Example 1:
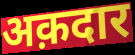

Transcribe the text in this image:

अक़दार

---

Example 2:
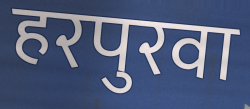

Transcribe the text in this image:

हरपुरवा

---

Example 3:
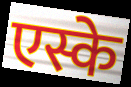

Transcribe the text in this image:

एस्के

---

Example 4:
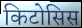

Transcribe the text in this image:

किटोसिस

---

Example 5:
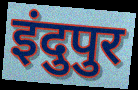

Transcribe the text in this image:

इंदुपुर